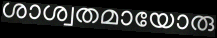
ശാശ്വതമായോരു